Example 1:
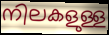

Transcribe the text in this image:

നിലകളുള്ള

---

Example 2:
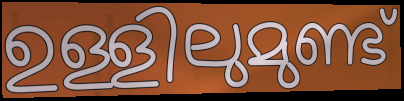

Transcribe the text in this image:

ഉള്ളിലുമുണ്ട്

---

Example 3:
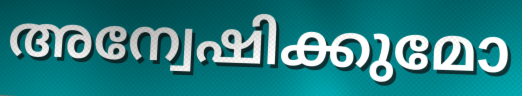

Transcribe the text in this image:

അന്വേഷിക്കുമോ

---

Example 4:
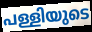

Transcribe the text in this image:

പള്ളിയുടെ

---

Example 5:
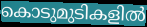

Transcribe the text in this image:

കൊടുമുടികളിൽ